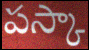
పస్కా